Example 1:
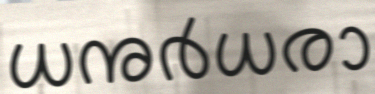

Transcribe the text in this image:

ധനുർധരാ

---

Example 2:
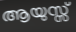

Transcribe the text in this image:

ആയുസ്സ്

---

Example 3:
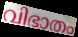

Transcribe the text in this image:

വിഭാതം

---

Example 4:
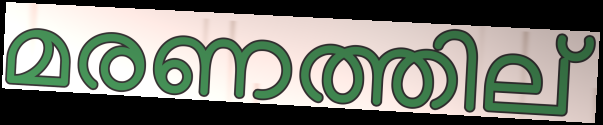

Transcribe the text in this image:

മരണത്തില്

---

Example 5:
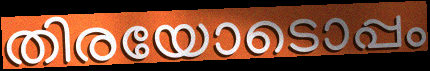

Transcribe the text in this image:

തിരയോടൊപ്പം